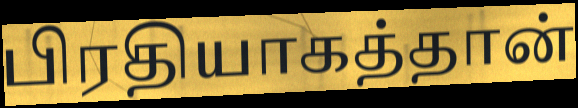
பிரதியாகத்தான்